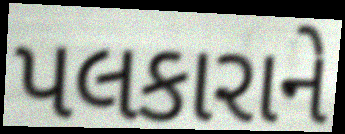
પલકારાને